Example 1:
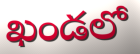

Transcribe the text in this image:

ఖండలో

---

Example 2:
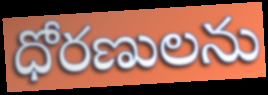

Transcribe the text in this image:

ధోరణులను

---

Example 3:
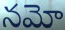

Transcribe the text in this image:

నమో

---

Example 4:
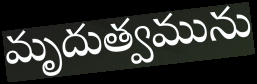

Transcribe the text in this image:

మృదుత్వమును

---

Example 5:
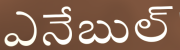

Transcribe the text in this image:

ఎనేబుల్